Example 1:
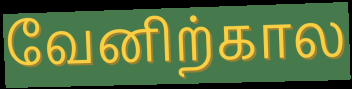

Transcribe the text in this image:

வேனிற்கால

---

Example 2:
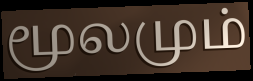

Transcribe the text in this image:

மூலமும்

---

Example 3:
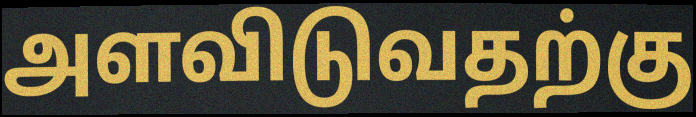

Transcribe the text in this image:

அளவிடுவதற்கு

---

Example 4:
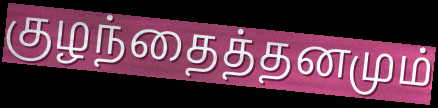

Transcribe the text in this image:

குழந்தைத்தனமும்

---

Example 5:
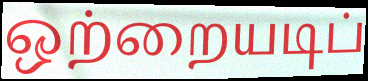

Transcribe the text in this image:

ஒற்றையடிப்